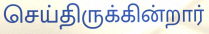
செய்திருக்கின்றார்